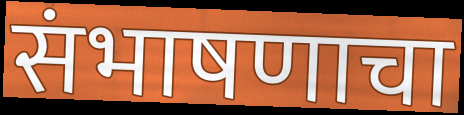
संभाषणाचा